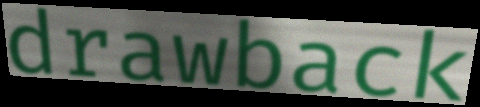
drawback